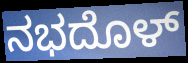
ನಭದೊಳ್